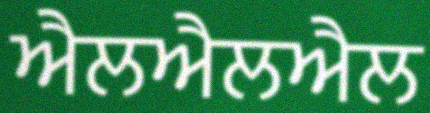
ਐਲਐਲਐਲ